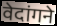
वेदांगने